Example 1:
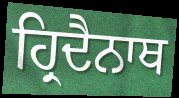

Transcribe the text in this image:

ਹ੍ਰਿਦੈਨਾਥ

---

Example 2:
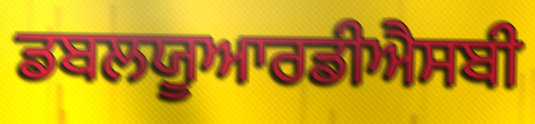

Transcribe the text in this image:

ਡਬਲਯੂਆਰਡੀਐਸਬੀ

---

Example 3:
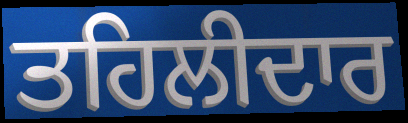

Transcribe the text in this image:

ਤਹਿਲੀਦਾਰ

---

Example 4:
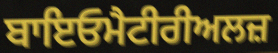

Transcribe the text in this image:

ਬਾਇਓਮੈਟੀਰੀਅਲਜ਼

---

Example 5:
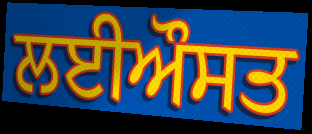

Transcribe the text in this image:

ਲਈਔਸਤ